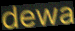
dewa